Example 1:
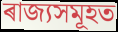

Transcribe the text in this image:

ৰাজ্যসমূহত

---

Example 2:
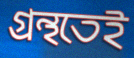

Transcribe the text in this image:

গ্ৰন্থতেই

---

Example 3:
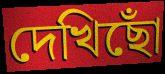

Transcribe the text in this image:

দেখিছোঁ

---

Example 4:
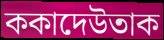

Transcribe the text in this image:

ককাদেউতাক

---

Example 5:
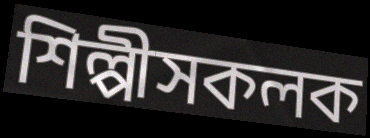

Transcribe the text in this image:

শিল্পীসকলক